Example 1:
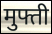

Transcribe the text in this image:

मुफ्ती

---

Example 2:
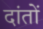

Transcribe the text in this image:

दांतों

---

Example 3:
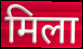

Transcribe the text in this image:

मिला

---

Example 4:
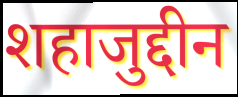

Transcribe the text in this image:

शहाजुद्दीन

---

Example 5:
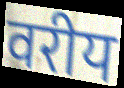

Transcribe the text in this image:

वरीय